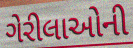
ગેરીલાઓની